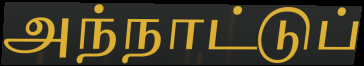
அந்நாட்டுப்